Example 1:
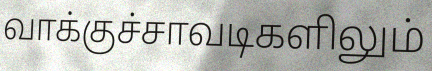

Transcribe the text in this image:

வாக்குச்சாவடிகளிலும்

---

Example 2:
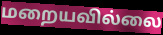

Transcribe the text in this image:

மறையவில்லை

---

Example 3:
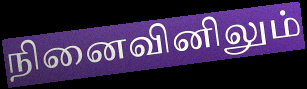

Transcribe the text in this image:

நினைவினிலும்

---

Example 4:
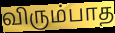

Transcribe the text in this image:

விரும்பாத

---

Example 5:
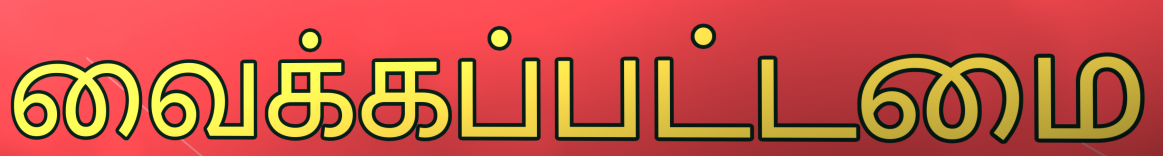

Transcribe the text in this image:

வைக்கப்பட்டமை